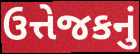
ઉત્તેજકનું